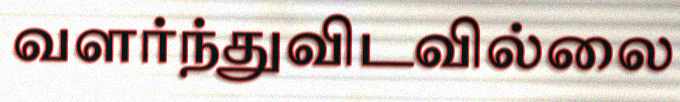
வளர்ந்துவிடவில்லை